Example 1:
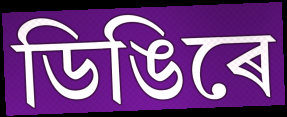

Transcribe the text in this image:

ডিঙিৰে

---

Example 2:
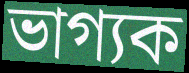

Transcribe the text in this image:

ভাগ্যক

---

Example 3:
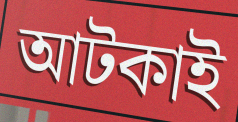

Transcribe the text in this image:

আটকাই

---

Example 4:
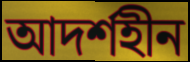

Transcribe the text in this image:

আদৰ্শহীন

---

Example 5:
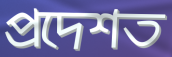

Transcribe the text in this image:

প্ৰদেশত